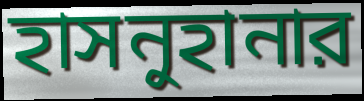
হাসনুহানার